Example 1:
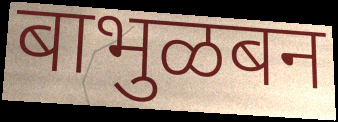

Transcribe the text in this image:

बाभुळबन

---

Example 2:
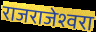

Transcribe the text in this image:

राजराजेश्वरा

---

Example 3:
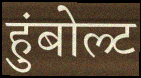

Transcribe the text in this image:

हुंबोल्ट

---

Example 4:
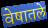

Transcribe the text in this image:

वेषातले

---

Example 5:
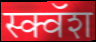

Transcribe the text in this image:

स्क्वॅश